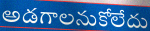
అడగాలనుకోలేదు